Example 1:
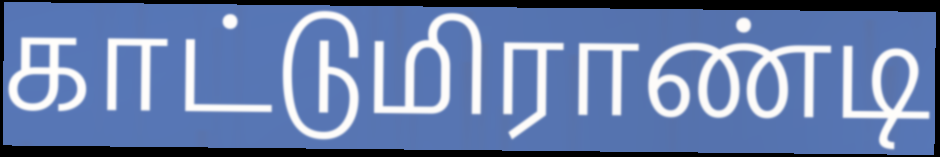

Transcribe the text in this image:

காட்டுமிராண்டி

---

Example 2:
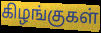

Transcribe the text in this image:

கிழங்குகள்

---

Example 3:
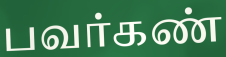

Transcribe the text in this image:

பவர்கண்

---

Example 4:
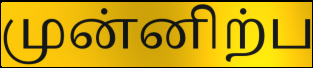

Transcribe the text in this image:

முன்னிற்ப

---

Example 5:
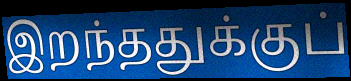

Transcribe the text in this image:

இறந்ததுக்குப்